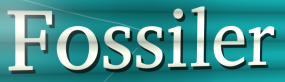
Fossiler